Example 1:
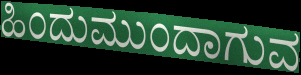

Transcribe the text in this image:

ಹಿಂದುಮುಂದಾಗುವ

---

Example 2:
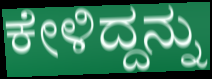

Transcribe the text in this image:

ಕೇಳಿದ್ದನ್ನು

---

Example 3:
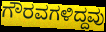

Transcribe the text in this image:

ಗೌರವಗಳಿದ್ದವು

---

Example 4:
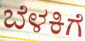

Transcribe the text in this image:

ಬೆಳಕಿಗೆ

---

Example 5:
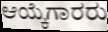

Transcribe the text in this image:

ಆಯ್ಕೆಗಾರರು